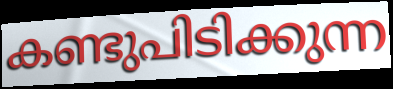
കണ്ടുപിടിക്കുന്ന